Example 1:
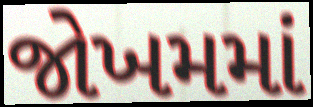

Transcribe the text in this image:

જોખમમાં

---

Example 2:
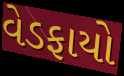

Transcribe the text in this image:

વેડફાયો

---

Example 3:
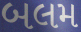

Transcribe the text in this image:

બલમ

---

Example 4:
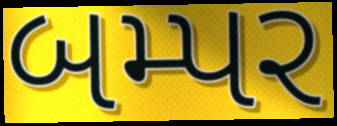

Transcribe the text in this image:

બમ્પર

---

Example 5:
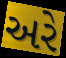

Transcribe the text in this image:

અરે